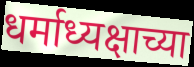
धर्माध्यक्षाच्या